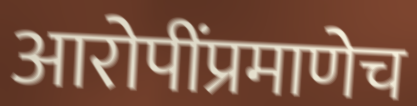
आरोपींप्रमाणेच